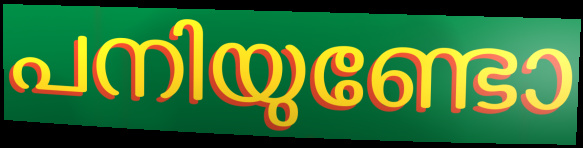
പനിയുണ്ടോ